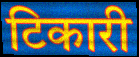
टिकारी